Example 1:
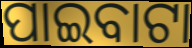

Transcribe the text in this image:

ପାଇବାଟା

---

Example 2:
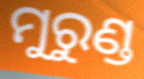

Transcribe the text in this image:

ମୁରୁଣ୍ଡ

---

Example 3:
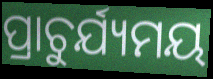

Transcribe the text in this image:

ପ୍ରାଚୁର୍ଯ୍ୟମୟ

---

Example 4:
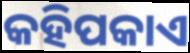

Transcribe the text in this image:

କହିପକାଏ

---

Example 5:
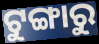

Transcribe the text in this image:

ଟୁଙ୍ଗାରୁ